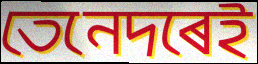
তেনেদৰেই